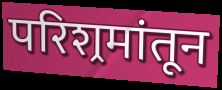
परिश्रमांतून